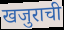
खजुराची